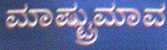
ಮಾಷ್ಟ್ರುಮಾವ